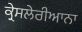
ਕ੍ਰੇਸਲੇਰੀਆਨਾ